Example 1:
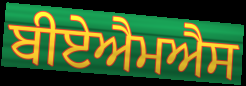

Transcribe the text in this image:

ਬੀਏਐਮਐਸ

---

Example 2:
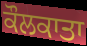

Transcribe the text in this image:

ਕੌਲਕਾਤਾ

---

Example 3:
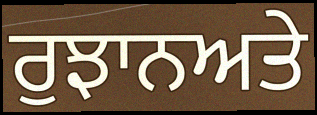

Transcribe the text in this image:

ਰੁਝਾਨਅਤੇ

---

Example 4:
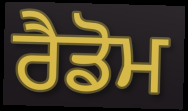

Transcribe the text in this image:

ਰੈਡੋਮ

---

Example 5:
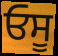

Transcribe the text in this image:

ਓਸੂ